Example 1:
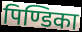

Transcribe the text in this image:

पिण्डिका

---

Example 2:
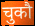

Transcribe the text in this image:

चुकौ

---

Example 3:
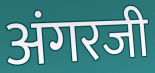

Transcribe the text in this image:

अंगरजी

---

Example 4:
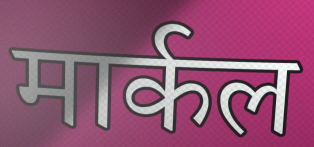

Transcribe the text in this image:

मार्कल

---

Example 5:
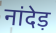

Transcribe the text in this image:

नांदेड़